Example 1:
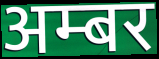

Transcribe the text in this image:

अम्बर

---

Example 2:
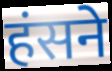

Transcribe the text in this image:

हंसने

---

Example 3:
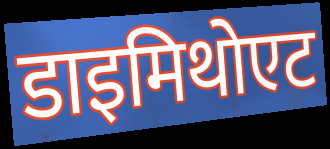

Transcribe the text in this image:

डाइमिथोएट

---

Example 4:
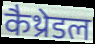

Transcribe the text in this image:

कैथ्रेडल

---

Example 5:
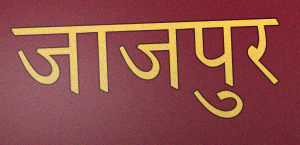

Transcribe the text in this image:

जाजपुर